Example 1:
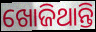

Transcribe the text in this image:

ଖୋଜିଥାନ୍ତି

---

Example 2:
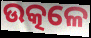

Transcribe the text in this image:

ଉତ୍କଳେ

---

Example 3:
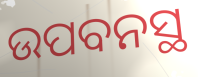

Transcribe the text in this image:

ଉପବନସ୍ଥ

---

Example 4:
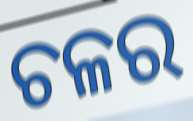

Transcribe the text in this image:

ଚଳର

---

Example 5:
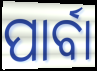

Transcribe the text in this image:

ପାର୍ବା